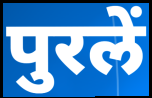
पुरलें